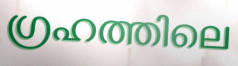
ഗ്രഹത്തിലെ